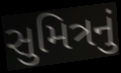
સુમિત્રનું